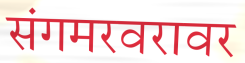
संगमरवरावर